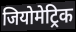
जियोमेट्रिक